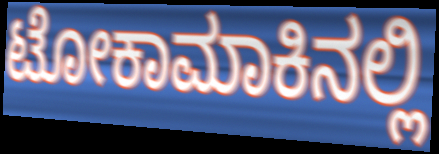
ಟೋಕಾಮಾಕಿನಲ್ಲಿ